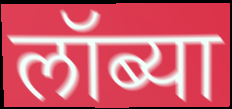
लॉब्या